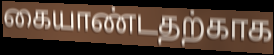
கையாண்டதற்காக